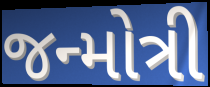
જન્મોત્રી